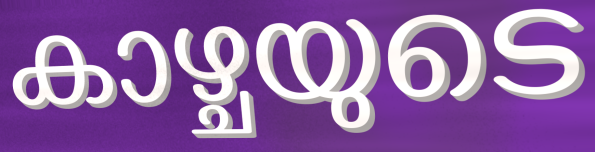
കാഴ്ചയുടെ